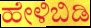
ಹೇಳಿಬಿಡಿ